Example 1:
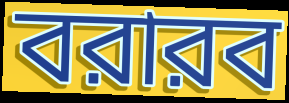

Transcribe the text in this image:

বরারব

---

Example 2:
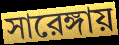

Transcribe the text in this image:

সারেঙ্গায়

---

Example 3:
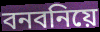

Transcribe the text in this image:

বনবনিয়ে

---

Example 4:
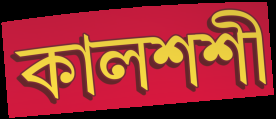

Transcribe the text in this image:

কালশশী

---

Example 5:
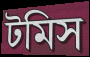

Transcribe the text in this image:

টমিস